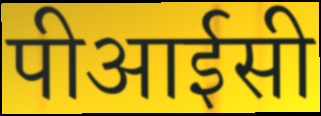
पीआईसी